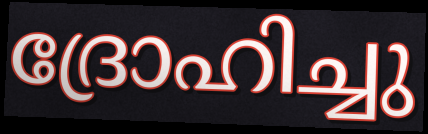
ദ്രോഹിച്ചു